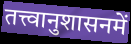
तत्त्वानुशासनमें